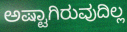
ಅಷ್ಟಾಗಿರುವುದಿಲ್ಲ